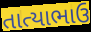
તાત્યાભાઉ